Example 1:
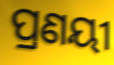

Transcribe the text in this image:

ପ୍ରଣୟୀ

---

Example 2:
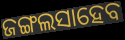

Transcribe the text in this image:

ଜଙ୍ଗଲସାହେବ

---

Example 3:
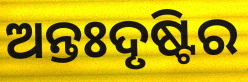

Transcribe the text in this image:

ଅନ୍ତଃଦୃଷ୍ଟିର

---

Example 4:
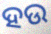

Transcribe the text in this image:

ହଉ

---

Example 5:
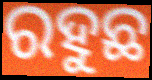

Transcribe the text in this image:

ରହୁଛ